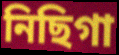
নিছিগা